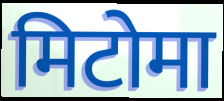
मिटोमा